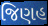
જિણહ